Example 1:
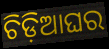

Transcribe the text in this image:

ଚିଡ଼ିଆଘର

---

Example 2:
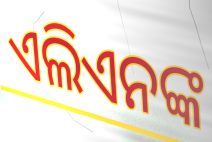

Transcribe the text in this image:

ଏଲିଏନଙ୍କ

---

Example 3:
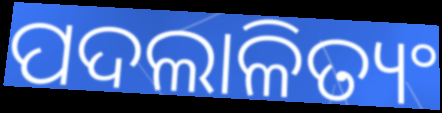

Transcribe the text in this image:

ପଦଲାଳିତ୍ୟଂ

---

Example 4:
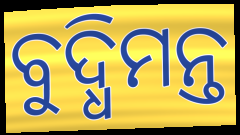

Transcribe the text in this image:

ବୁଦ୍ଧିମନ୍ତ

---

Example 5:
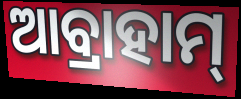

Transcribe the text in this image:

ଆବ୍ରାହାମ୍